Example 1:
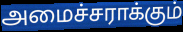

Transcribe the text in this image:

அமைச்சராக்கும்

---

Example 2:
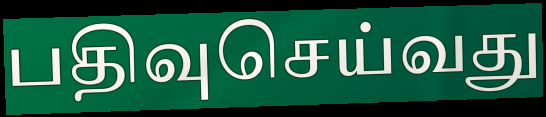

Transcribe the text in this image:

பதிவுசெய்வது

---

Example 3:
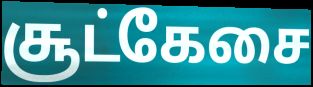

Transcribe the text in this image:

சூட்கேசை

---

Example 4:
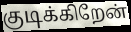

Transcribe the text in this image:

குடிக்கிறேன்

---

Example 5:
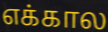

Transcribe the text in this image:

எக்கால